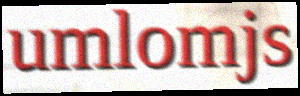
umlomjs